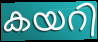
കയറി